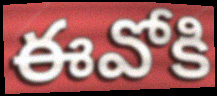
ఈవోకి